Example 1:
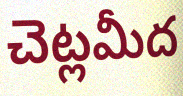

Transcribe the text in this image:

చెట్లమీద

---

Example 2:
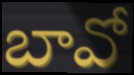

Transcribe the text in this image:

బావో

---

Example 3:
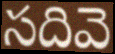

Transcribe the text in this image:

సదివె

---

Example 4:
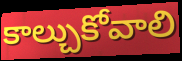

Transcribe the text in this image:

కాల్చుకోవాలి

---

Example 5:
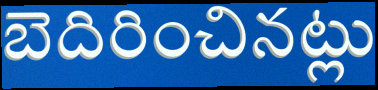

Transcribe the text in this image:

బెదిరించినట్లు